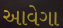
આવેગા